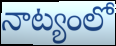
నాట్యంలో